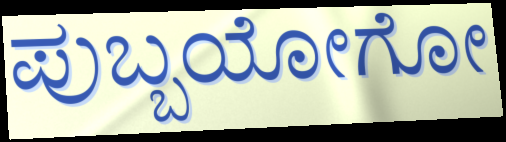
ಪುಬ್ಬಯೋಗೋ